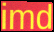
imd